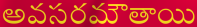
అవసరమౌతాయి